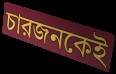
চারজনকেই